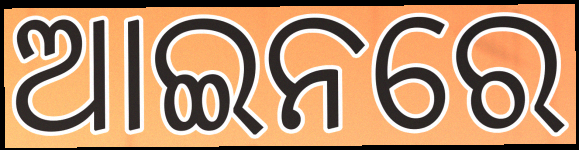
ଆଇନରେ